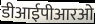
डीआईपीआरओ